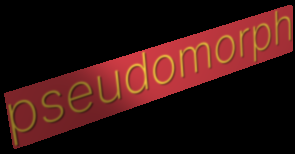
pseudomorph